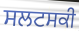
ਸਲਟਸਕੀ